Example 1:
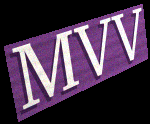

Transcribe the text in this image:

MVV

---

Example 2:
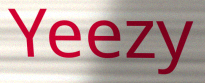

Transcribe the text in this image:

Yeezy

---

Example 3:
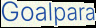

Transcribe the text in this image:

Goalpara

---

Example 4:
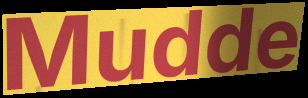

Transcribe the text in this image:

Mudde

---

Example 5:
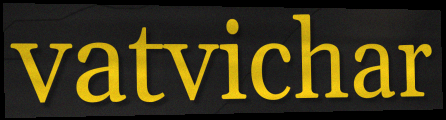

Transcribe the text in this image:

vatvichar